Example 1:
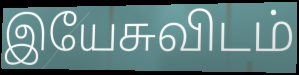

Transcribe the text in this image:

இயேசுவிடம்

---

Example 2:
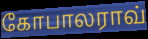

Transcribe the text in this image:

கோபாலராவ்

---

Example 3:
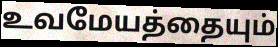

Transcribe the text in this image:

உவமேயத்தையும்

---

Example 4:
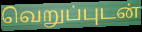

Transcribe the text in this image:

வெறுப்புடன்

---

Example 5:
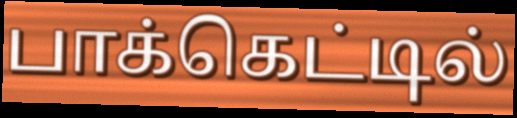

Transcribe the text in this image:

பாக்கெட்டில்